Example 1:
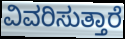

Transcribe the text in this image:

ವಿವರಿಸುತ್ತಾರೆ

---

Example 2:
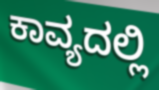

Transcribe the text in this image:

ಕಾವ್ಯದಲ್ಲಿ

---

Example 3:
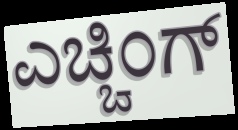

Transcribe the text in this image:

ಎಚ್ಚಿಂಗ್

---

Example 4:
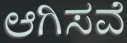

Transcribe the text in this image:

ಆಗಿಸವೆ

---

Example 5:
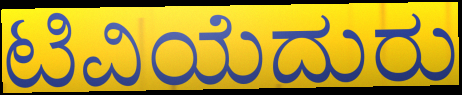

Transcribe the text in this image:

ಟಿವಿಯೆದುರು